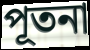
পূতনা